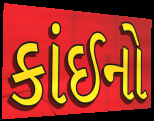
કાંઈનો